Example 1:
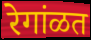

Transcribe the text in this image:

रेगांळत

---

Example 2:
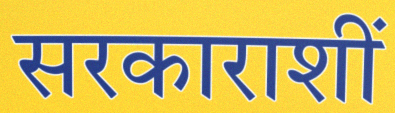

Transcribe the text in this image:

सरकाराशीं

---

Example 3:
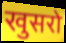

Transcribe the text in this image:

खुसरो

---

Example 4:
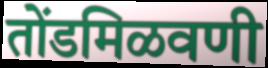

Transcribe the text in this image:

तोंडमिळवणी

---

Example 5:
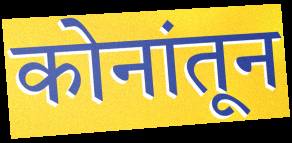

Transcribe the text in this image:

कोनांतून